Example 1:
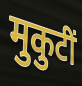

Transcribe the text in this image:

मुकुटीं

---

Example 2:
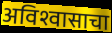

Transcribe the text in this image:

अविश्वासाचा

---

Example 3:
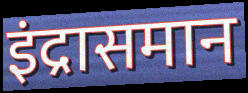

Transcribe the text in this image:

इंद्रासमान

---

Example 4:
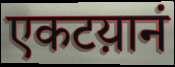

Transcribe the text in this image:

एकटय़ानं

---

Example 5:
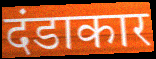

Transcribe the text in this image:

दंडाकार